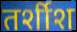
तर्शीश